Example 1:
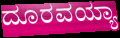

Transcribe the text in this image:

ದೂರವಯ್ಯಾ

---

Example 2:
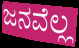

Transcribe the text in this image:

ಜನವೆಲ್ಲ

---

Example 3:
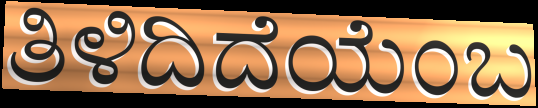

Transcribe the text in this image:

ತಿಳಿದಿದೆಯೆಂಬ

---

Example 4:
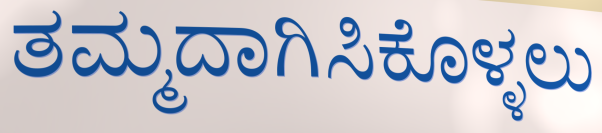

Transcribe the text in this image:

ತಮ್ಮದಾಗಿಸಿಕೊಳ್ಳಲು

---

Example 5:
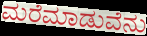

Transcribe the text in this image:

ಮರೆಮಾಡುವೆನು